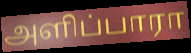
அளிப்பாரா